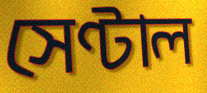
সেণ্টাল